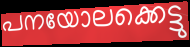
പനയോലക്കെട്ടു